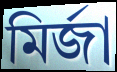
মির্জা